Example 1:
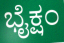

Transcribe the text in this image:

ಭೈಕ್ಷಂ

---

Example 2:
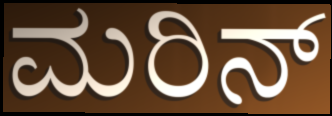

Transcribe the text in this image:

ಮರಿನ್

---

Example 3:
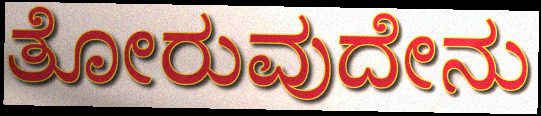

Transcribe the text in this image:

ತೋರುವುದೇನು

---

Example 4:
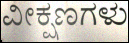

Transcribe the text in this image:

ವೀಕ್ಷಣಗಳು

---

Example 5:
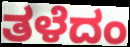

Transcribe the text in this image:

ತಳೆದಂ